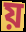
য়